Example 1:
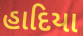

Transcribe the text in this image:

હાદિયા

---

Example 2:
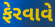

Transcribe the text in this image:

ફેરવાવે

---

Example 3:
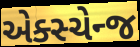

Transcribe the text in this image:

એક્સ્ચેન્જ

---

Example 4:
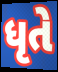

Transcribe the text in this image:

ધૃતે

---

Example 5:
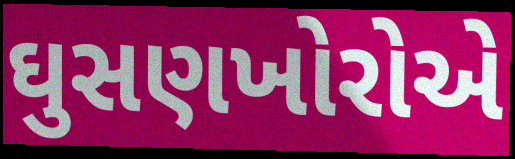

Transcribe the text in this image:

ઘુસણખોરોએ